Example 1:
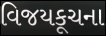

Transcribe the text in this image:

વિજયકૂચના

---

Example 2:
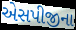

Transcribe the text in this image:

એસપીજીના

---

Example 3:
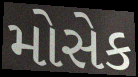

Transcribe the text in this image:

મોસેક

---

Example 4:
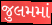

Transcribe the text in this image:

જુલમમાં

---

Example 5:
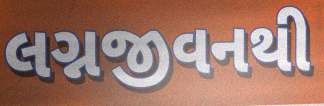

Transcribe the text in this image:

લગ્નજીવનથી